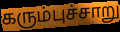
கரும்புச்சாறு